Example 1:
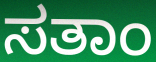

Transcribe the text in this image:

ಸತಾಂ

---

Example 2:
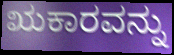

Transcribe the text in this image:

ಋಕಾರವನ್ನು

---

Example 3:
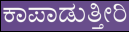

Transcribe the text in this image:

ಕಾಪಾಡುತ್ತೀರಿ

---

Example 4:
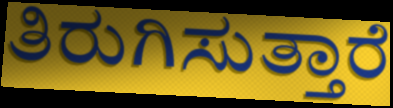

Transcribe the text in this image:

ತಿರುಗಿಸುತ್ತಾರೆ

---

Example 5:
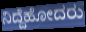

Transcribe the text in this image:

ನಿದ್ದೆಹೋದರು